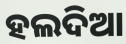
ହଲଦିଆ